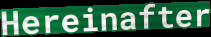
Hereinafter